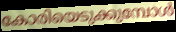
കോരിയെടുക്കുമ്പോൾ